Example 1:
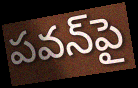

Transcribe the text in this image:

పవన్‌పై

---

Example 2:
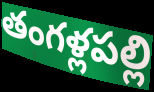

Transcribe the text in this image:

తంగళ్లపల్లి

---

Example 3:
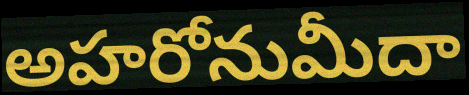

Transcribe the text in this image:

అహరోనుమీదా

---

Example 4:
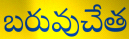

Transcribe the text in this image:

బరువుచేత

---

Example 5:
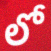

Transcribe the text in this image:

లో